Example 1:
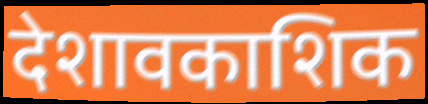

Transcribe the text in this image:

देशावकाशिक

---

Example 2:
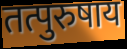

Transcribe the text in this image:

तत्पुरुषाय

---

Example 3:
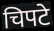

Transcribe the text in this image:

चिपटे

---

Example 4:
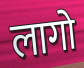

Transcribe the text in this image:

लागो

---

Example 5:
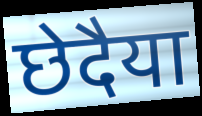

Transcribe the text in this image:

छेदैया